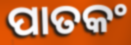
ପାତକଂ